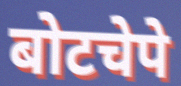
बोटचेपे